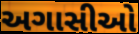
અગાસીઓ